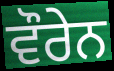
ਵੌਰੇਨ